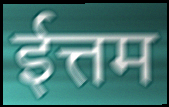
ईत्तम